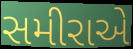
સમીરાએ